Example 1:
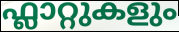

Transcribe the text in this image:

ഫ്ലാറ്റുകളും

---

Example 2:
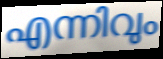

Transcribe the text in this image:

എന്നിവും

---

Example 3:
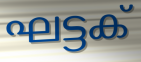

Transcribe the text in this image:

ഘട്ടക്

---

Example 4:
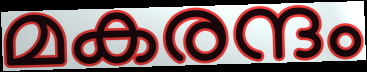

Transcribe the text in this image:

മകരന്ദം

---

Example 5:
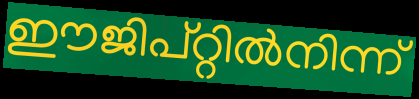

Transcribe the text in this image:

ഈജിപ്റ്റിൽനിന്ന്